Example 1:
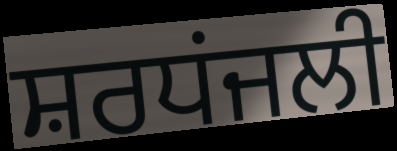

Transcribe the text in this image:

ਸ਼ਰਧਂਜਲੀ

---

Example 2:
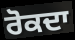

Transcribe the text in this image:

ਰੋਕਦਾ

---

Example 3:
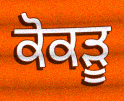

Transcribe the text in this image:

ਕੋਕੜੂ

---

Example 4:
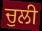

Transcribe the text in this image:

ਚੁਲੀ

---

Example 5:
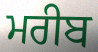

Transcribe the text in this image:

ਮਰੀਬ